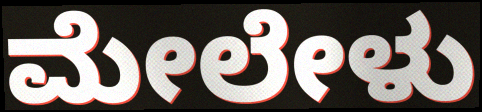
ಮೇಲೇಳು